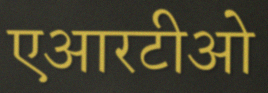
एआरटीओ